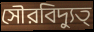
সৌরবিদ্যুত্